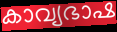
കാവ്യഭാഷ